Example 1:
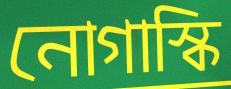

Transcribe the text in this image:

নোগাস্কি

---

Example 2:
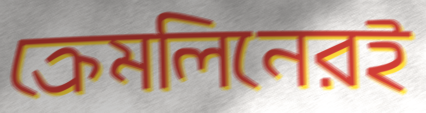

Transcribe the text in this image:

ক্রেমলিনেরই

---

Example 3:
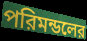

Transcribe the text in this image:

পরিমন্ডলের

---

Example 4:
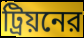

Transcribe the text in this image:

ট্রিয়নের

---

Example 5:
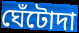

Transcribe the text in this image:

ঘেঁটোদা